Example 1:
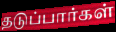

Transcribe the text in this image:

தடுப்பார்கள்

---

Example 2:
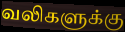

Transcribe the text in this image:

வலிகளுக்கு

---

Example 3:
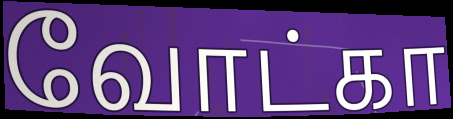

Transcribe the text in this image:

வோட்கா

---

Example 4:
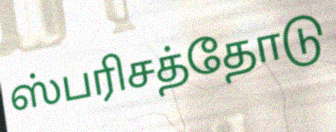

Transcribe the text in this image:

ஸ்பரிசத்தோடு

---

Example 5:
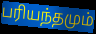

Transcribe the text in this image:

பரியந்தமும்